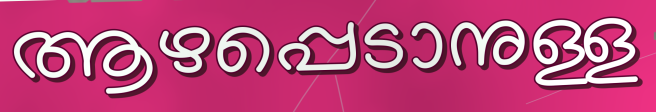
ആഴപ്പെടാനുള്ള